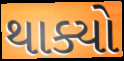
થાક્યો